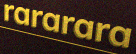
rararara